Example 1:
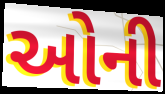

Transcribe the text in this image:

ઓની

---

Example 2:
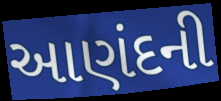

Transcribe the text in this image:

આણંદની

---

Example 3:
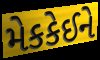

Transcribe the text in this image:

મેકકેઈને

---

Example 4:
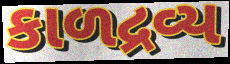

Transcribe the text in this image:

કાળદ્રવ્ય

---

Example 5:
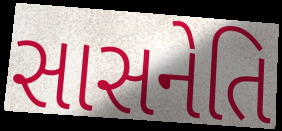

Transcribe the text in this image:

સાસનેતિ